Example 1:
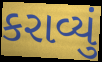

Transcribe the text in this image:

કરાવ્યું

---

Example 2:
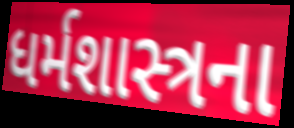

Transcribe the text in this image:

ધર્મશાસ્ત્રના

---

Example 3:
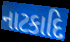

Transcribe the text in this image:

નાટકાદિ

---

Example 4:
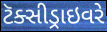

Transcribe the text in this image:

ટૅક્સીડ્રાઇવરે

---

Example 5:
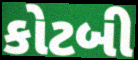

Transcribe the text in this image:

કોટબી